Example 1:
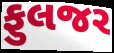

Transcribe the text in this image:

ફુલજર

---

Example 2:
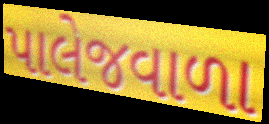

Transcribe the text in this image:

પાલેજવાળા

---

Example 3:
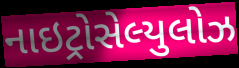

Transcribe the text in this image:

નાઇટ્રોસેલ્યુલોઝ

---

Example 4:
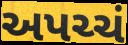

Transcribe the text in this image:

અપચ્ચં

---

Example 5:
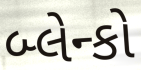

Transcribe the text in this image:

બ્લેન્કો